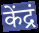
केंद्रं